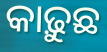
କାଢ଼ୁଛ